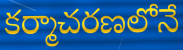
కర్మాచరణలోనే